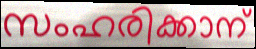
സംഹരിക്കാന്